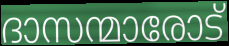
ദാസന്മാരോട്